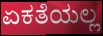
ಏಕತೆಯಲ್ಲ